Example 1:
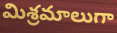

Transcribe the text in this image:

మిశ్రమాలుగా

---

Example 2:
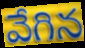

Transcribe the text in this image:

వేగిన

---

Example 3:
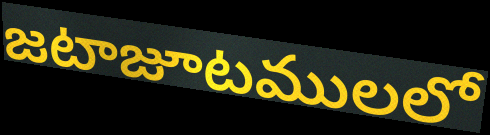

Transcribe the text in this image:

జటాజూటములలో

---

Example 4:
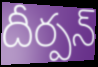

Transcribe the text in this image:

దీర్పన్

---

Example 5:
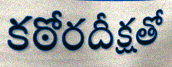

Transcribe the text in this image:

కఠోరదీక్షతో